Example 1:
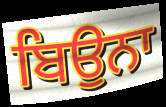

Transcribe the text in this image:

ਬਿਉਨਾ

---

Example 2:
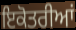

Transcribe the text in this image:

ਇਕੋਤਰੀਆਂ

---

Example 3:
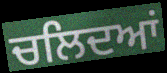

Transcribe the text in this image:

ਚਲਿਦਆਂ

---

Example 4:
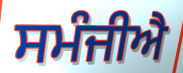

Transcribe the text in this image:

ਸਮੰਜੀਐ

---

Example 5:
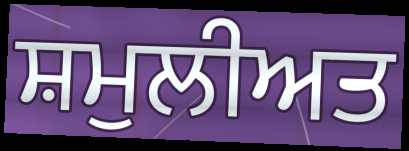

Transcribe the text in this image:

ਸ਼ਮੁਲੀਅਤ